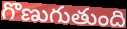
గొణుగుతుంది